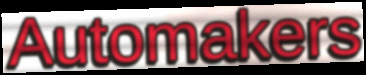
Automakers